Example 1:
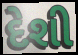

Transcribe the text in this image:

દેશી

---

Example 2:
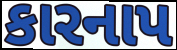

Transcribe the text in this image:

કારનાપ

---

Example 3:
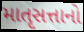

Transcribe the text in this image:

માતૃસત્તાનો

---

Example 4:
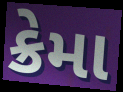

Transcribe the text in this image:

ક્રેમા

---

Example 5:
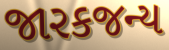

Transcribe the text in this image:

જારકજન્ય